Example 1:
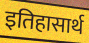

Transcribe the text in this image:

इतिहासार्थ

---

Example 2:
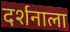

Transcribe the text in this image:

दर्शनाला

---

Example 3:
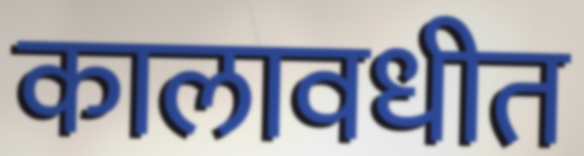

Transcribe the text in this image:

कालावधीत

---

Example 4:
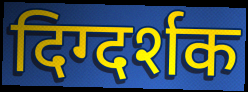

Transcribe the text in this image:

दिग्दर्शक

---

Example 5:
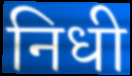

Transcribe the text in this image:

निधी